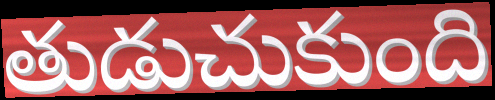
తుడుచుకుంది